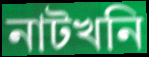
নাটখনি